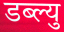
डब्ल्यु